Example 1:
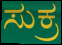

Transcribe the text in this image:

ಸುಕ್ರ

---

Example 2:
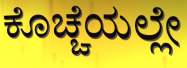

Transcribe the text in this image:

ಕೊಚ್ಚೆಯಲ್ಲೇ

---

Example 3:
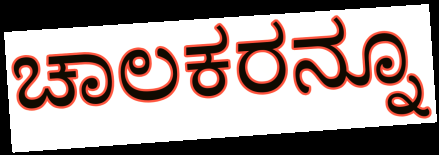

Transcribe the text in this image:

ಚಾಲಕರನ್ನೂ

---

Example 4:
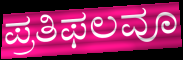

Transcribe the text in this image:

ಪ್ರತಿಫಲವೂ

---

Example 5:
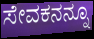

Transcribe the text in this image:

ಸೇವಕನನ್ನೂ